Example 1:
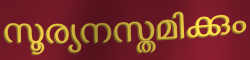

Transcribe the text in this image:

സൂര്യനസ്തമിക്കും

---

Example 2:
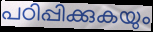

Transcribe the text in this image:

പഠിപ്പിക്കുകയും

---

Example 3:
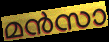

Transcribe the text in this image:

മൻസാ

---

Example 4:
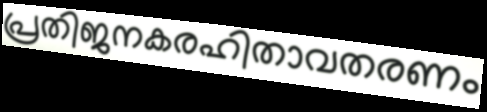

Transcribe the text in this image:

പ്രതിജനകരഹിതാവതരണം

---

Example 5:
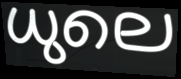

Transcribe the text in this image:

ധുലെ